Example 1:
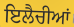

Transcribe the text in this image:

ਇਲੈਚੀਆਂ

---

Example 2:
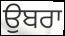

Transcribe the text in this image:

ਉਬਰਾ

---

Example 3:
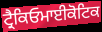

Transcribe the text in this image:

ਟ੍ਰੈਕਿਓਮਾਈਕੋਟਿਕ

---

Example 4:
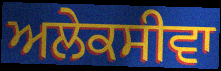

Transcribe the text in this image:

ਅਲੇਕਸੀਵਾ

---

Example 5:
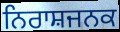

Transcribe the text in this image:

ਨਿਰਾਸ਼ਜਨਕ